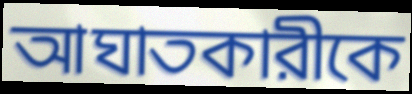
আঘাতকারীকে